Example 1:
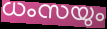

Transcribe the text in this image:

ധംസയും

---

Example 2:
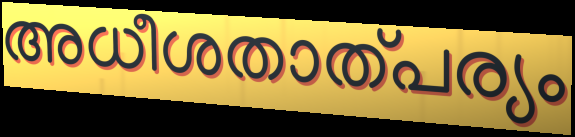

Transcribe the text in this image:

അധീശതാത്പര്യം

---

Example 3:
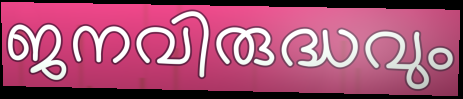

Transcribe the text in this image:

ജനവിരുദ്ധവും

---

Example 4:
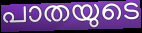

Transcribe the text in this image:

പാതയുടെ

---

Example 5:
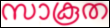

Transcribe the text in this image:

സാകൂത